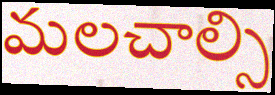
మలచాల్సి